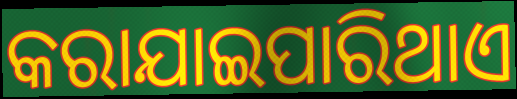
କରାଯାଇପାରିଥାଏ